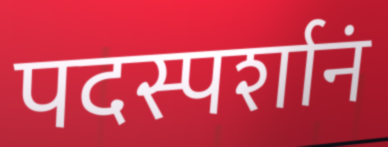
पदस्पर्शानं